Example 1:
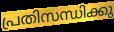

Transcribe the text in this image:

പ്രതിസന്ധിക്കു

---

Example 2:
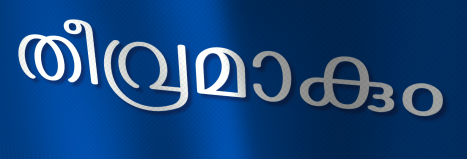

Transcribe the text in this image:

തീവ്രമാകും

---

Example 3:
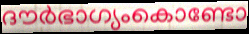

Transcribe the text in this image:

ദൗർഭാഗ്യംകൊണ്ടോ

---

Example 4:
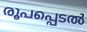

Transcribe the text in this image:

രൂപപ്പെടൽ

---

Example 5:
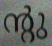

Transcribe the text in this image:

ന്റു